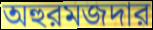
অহুরমজদার